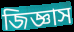
জিজ্ঞাস